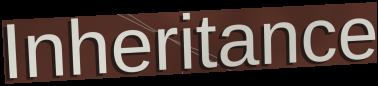
Inheritance